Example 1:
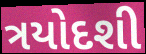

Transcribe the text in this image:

ત્રયોદશી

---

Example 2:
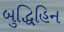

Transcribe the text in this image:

બુદ્ધિહિન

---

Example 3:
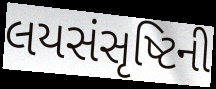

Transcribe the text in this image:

લયસંસૃષ્ટિની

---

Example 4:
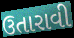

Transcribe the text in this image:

ઉતારાવી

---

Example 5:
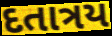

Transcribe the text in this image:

દતાત્રય